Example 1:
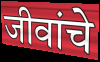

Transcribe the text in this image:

जीवांचे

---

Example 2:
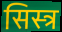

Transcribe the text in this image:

सिस्त्र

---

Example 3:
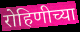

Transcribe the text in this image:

रोहिणीच्या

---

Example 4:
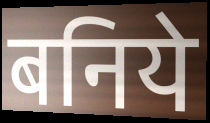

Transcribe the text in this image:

बनिये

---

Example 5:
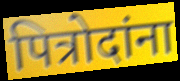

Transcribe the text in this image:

पित्रोदांना